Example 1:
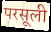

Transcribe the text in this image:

परसूली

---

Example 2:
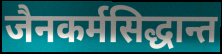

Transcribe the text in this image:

जैनकर्मसिद्धान्त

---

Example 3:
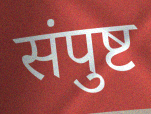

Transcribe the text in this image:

संपुष्ट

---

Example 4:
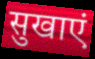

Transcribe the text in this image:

सुखाएं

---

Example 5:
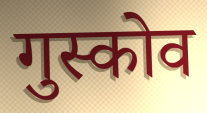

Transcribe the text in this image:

गुस्कोव